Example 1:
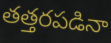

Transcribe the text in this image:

తత్తరపడినా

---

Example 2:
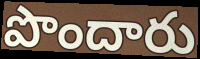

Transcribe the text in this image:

పొందారు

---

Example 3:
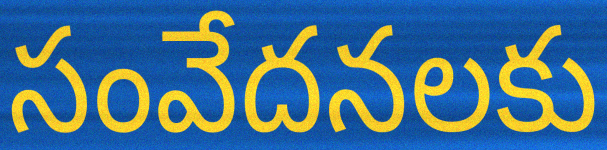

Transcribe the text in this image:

సంవేదనలకు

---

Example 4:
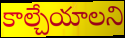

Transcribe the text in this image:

కాల్చేయాలని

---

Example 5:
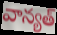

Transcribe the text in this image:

వాన్యత్